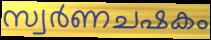
സ്വർണചഷകം